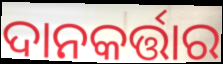
ଦାନକର୍ତ୍ତାର